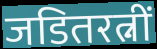
जडितरत्नीं